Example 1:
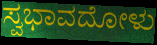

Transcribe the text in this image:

ಸ್ವಭಾವದೋಳು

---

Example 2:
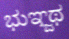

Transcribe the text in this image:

ಭುಞ್ಜಥ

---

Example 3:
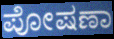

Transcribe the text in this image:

ಪೋಷಣಾ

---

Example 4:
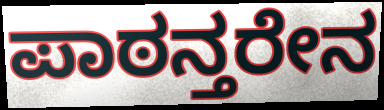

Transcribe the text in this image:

ಪಾಠನ್ತರೇನ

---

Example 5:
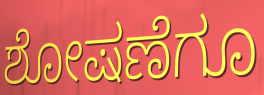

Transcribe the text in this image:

ಶೋಷಣೆಗೂ